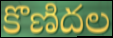
కొణిదల